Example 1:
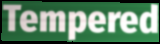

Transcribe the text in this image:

Tempered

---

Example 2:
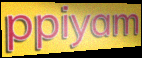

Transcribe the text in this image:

ppiyam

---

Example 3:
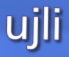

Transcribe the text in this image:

ujli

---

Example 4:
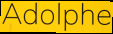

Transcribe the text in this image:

Adolphe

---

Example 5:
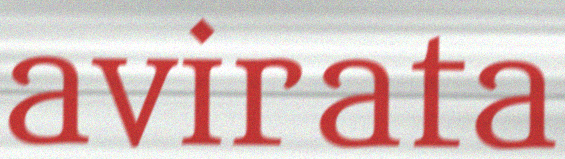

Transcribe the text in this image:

avirata